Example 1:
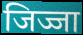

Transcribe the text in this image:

जिज्जा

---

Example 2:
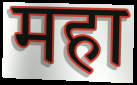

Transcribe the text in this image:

महा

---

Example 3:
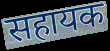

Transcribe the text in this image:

सहायक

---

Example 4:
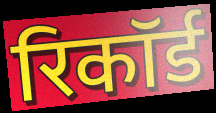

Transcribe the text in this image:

रिकॉर्ड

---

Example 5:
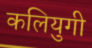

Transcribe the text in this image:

कलियुगी